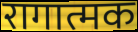
रागात्मक